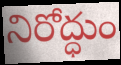
నిరోద్ధుం